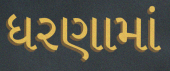
ધરણામાં